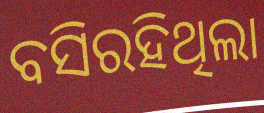
ବସିରହିଥିଲା